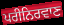
ਪਰੀਨਿਰਵਾਣ